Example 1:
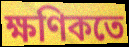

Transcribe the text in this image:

ক্ষণিকতে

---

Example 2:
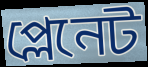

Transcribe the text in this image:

প্লেনেট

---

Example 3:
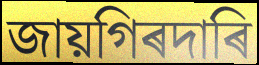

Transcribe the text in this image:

জায়গিৰদাৰি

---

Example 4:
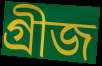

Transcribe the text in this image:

গ্ৰীজ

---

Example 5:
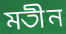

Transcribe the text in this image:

মতীন